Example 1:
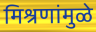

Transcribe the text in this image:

मिश्रणांमुळे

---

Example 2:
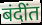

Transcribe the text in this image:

बंदींत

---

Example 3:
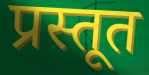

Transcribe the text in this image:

प्रस्तूत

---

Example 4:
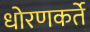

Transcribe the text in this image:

धोरणकर्ते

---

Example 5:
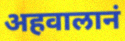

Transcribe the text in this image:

अहवालानं